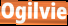
Ogilvie